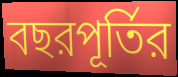
বছরপূর্তির